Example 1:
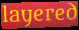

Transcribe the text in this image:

layered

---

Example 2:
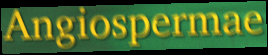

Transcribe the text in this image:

Angiospermae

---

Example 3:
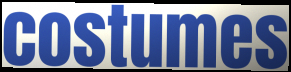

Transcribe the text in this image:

costumes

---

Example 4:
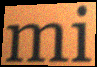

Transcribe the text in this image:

mi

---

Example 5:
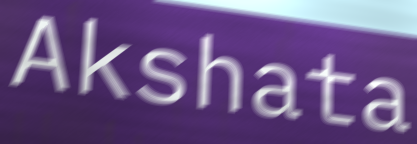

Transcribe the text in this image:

Akshata